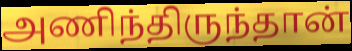
அணிந்திருந்தான்